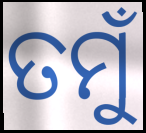
ତମୁଁ